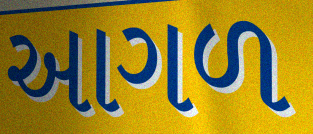
આગળ